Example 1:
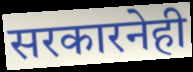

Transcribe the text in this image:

सरकारनेही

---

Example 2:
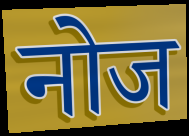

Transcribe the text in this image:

नोज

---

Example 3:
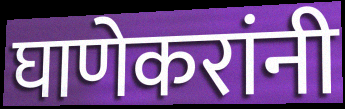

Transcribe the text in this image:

घाणेकरांनी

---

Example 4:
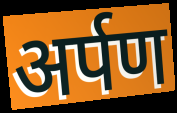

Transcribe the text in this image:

अर्पण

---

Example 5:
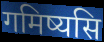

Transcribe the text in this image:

गमिष्यसि